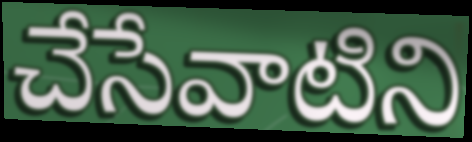
చేసేవాటిని